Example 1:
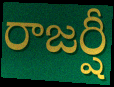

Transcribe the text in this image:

రాజర్షీ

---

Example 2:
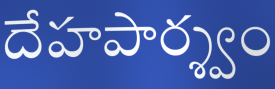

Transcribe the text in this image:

దేహపార్శ్వం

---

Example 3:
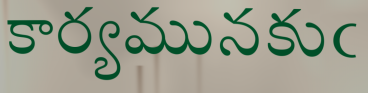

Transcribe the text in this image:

కార్యమునకుఁ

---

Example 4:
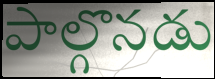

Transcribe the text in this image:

పాల్గొనడు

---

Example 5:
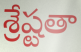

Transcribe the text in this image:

శ్రేష్టతా